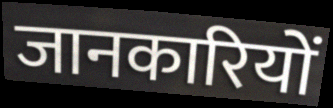
जानकारियों